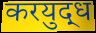
करयुद्ध